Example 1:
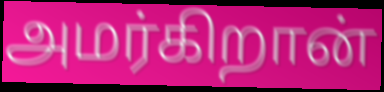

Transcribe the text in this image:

அமர்கிறான்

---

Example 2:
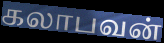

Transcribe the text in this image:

கலாபவன்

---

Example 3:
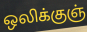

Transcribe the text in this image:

ஒலிக்குஞ்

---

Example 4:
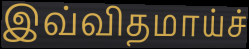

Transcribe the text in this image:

இவ்விதமாய்ச்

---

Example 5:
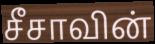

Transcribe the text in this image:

சீசாவின்